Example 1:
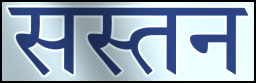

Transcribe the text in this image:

सस्तन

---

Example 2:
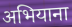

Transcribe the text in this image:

अभियाना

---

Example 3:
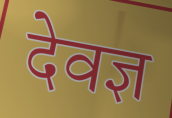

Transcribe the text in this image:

देवज्ञ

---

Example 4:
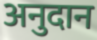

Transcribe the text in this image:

अनुदान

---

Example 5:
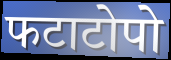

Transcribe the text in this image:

फटाटोपो